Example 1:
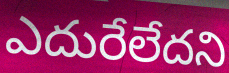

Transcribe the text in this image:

ఎదురేలేదని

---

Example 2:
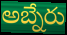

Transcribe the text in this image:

అబ్నేరు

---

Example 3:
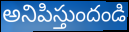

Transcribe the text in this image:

అనిపిస్తుందండి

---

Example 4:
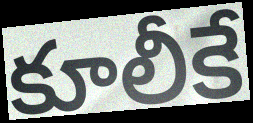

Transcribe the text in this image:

కూలీకే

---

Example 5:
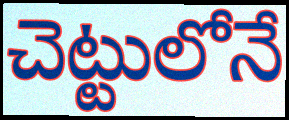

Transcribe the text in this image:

చెట్టులోనే